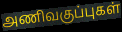
அணிவகுப்புகள்